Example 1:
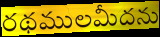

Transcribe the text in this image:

రథములమీదను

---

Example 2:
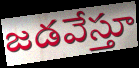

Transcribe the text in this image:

జడవేస్తూ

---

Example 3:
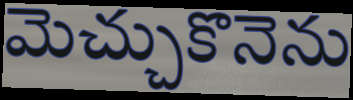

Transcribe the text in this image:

మెచ్చుకొనెను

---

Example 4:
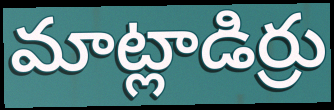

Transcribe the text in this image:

మాట్లాడిర్రు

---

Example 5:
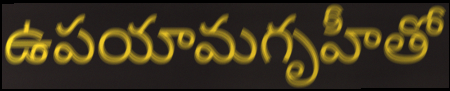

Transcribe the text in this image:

ఉపయామగృహీతో